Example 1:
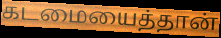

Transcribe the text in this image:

கடமையைத்தான்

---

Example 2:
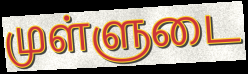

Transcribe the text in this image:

முள்ளுடை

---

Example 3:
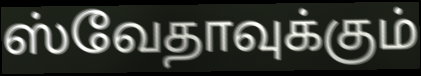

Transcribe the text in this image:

ஸ்வேதாவுக்கும்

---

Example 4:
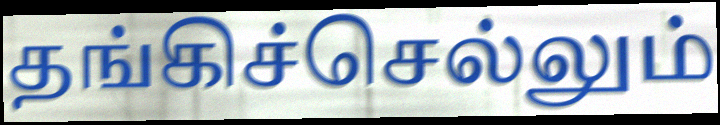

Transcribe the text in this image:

தங்கிச்செல்லும்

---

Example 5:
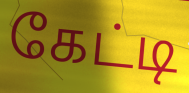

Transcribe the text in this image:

கேட்டி